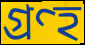
গ্ৰণ্হ